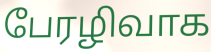
பேரழிவாக